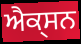
ਐਕ੍ਸਨ